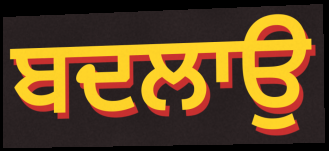
ਬਦਲਾਉ